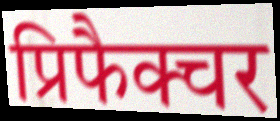
प्रिफैक्चर